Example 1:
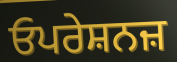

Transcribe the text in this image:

ਓਪਰੇਸ਼ਨਜ਼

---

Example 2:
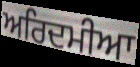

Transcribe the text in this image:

ਅਰਿਦਮੀਆ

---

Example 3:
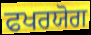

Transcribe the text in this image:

ਫਖਰਯੋਗ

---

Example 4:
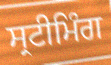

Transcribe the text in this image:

ਸ੍ਰਟੀਮਿੰਗ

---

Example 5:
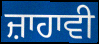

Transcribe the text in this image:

ਜ਼ਾਹਾਵੀ